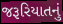
જરૂરિયાતનું